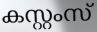
കസ്റ്റംസ്